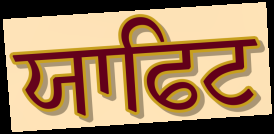
ਯਾਫਿਟ